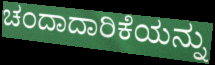
ಚಂದಾದಾರಿಕೆಯನ್ನು